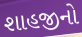
શાહજીનો